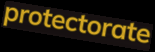
protectorate